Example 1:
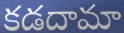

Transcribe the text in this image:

కడదామా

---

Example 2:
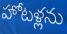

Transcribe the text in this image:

హోటళ్లను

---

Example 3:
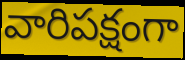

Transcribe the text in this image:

వారిపక్షంగా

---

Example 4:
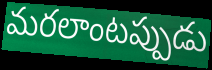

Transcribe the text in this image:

మరలాంటప్పుడు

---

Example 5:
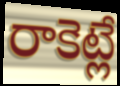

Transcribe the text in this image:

రాకెట్లే